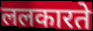
ललकारते